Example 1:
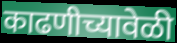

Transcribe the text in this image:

काढणीच्यावेळी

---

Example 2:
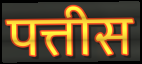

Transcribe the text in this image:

पत्तीस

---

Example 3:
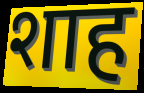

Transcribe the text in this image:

शाह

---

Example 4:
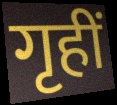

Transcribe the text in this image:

गृहीं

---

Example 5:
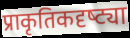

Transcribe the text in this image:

प्राकृतिकदृष्ट्या